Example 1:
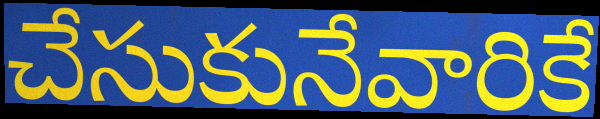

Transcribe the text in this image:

చేసుకునేవారికే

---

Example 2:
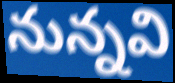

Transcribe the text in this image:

నున్నవి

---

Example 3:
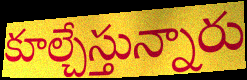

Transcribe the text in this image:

కూల్చేస్తున్నారు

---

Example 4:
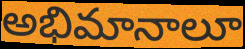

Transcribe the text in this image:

అభిమానాలూ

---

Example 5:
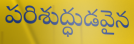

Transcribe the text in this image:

పరిశుద్ధుడవైన